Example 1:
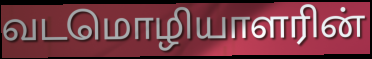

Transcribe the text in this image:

வடமொழியாளரின்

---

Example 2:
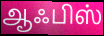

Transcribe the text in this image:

ஆஃபிஸ்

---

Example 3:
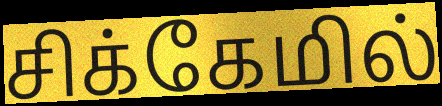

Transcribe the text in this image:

சிக்கேமில்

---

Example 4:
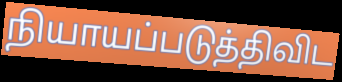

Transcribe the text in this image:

நியாயப்படுத்திவிட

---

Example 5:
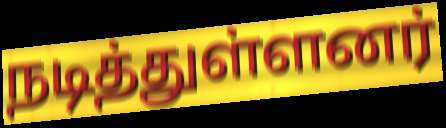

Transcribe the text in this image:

நடித்துள்ளனர்